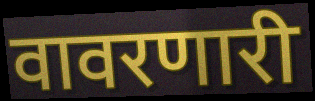
वावरणारी